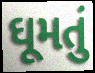
ઘૂમતું